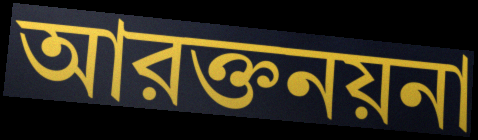
আরক্তনয়না